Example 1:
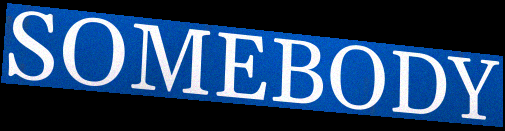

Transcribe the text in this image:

SOMEBODY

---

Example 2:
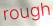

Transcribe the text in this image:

rough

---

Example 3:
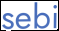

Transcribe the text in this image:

sebi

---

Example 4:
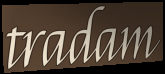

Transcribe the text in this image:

tradam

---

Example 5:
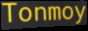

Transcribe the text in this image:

Tonmoy